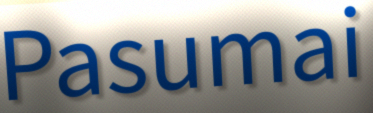
Pasumai